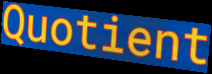
Quotient